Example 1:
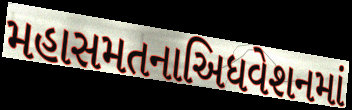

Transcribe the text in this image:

મહાસમતનાઅિધવેશનમાં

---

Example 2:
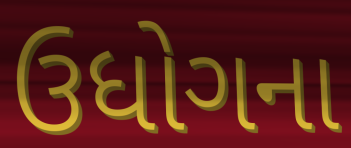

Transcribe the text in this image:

ઉધોગના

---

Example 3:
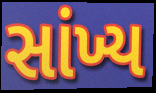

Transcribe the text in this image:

સાંખ્ય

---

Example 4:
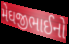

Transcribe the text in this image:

મેઘજીભાઈનો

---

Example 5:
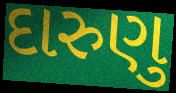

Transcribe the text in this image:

દારુણુ